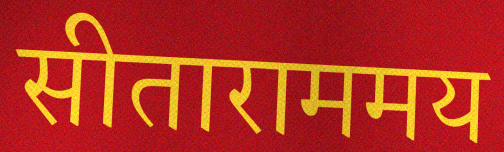
सीताराममय